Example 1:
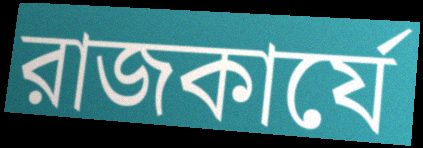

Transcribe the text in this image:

রাজকার্যে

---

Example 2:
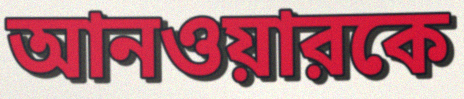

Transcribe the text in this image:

আনওয়ারকে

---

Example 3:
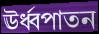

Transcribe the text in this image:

ঊর্ধ্বপাতন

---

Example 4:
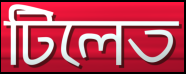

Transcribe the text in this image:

টিলেত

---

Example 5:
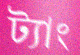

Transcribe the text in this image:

ট্যাং